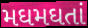
મઘમઘતાં